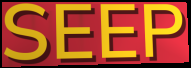
SEEP